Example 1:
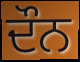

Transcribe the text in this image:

ਦੌਨ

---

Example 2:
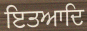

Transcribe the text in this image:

ਇਤਆਦਿ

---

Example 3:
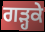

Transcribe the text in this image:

ਗੜ੍ਹਕੇ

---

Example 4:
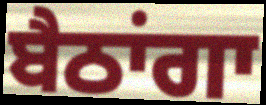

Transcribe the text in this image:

ਬੈਠਾਂਗਾ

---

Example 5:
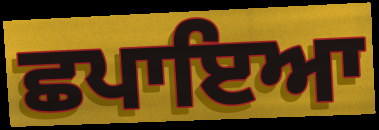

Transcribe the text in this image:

ਛਪਾਇਆ